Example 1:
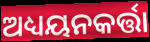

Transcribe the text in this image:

ଅଧ୍ୟୟନକର୍ତ୍ତା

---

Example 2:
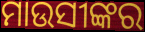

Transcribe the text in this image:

ମାଉସୀଙ୍କର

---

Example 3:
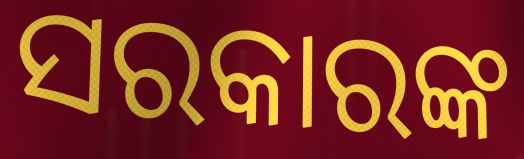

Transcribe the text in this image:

ସରକାରଙ୍କ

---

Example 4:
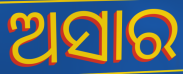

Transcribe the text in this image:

ଅସାର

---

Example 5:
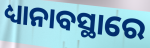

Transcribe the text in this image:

ଧ୍ୟାନାବସ୍ଥାରେ